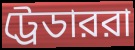
ট্রেডাররা